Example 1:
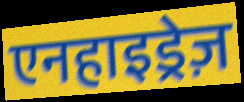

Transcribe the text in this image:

एनहाइड्रेज़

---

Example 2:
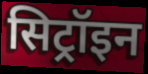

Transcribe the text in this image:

सिट्रॉइन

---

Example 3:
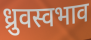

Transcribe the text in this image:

ध्रुवस्वभाव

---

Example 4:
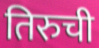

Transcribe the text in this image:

तिरुची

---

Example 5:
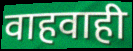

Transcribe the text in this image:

वाहवाही